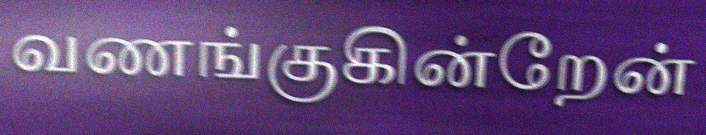
வணங்குகின்றேன்